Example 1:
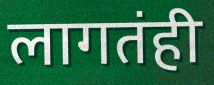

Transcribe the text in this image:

लागतंही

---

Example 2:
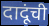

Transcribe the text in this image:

दादूंची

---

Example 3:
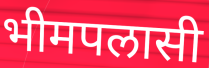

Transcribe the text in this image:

भीमपलासी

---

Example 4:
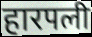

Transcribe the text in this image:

हारपली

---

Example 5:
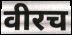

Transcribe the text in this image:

वीरच